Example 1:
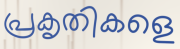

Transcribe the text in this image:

പ്രകൃതികളെ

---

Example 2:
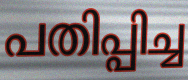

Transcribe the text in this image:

പതിപ്പിച്ച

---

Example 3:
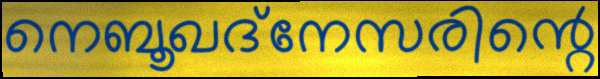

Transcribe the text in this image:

നെബൂഖദ്നേസരിന്റെ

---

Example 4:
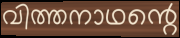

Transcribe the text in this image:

വിത്തനാഥന്റെ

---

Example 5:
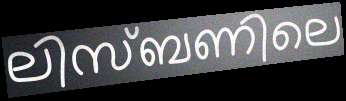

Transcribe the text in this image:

ലിസ്ബണിലെ